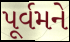
પૂર્વમને